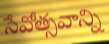
సేవోత్సవాన్ని